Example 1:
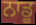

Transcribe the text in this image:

ਨਾਡੂ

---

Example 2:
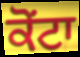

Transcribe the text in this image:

ਕੋਂਟਾ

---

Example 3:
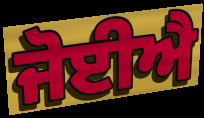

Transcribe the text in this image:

ਜੋਈਐ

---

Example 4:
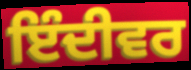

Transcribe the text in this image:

ਇੰਦੀਵਰ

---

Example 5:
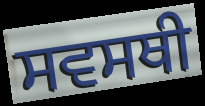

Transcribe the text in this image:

ਸਵਸਥੀ